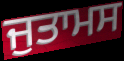
ਜੁਤਾਮਸ